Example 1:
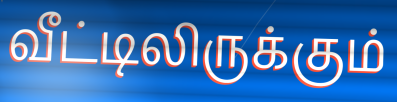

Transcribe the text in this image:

வீட்டிலிருக்கும்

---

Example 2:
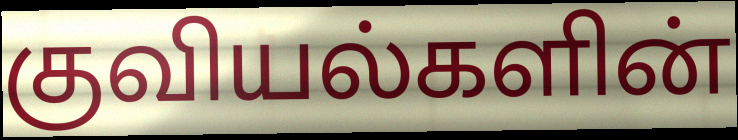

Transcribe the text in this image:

குவியல்களின்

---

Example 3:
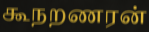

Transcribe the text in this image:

கூநறணரன்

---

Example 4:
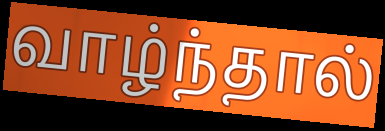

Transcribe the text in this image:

வாழ்ந்தால்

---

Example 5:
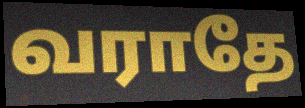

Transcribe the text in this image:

வராதே